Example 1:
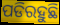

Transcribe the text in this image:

ପଡିରହୁଛି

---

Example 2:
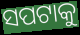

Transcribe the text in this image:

ସପଟାକୁ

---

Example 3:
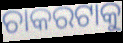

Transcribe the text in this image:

ଚାକରଟାକୁ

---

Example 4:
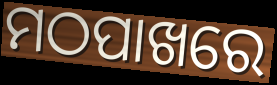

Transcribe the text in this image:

ମଠପାଖରେ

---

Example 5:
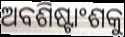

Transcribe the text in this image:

ଅବଶିଷ୍ଟାଂଶକୁ